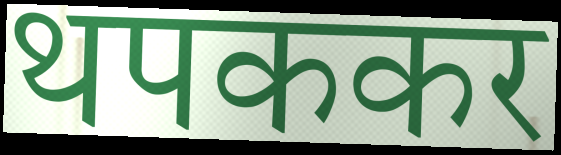
थपककर